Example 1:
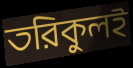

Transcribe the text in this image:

তরিকুলই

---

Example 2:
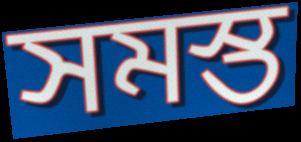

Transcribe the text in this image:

সমস্ত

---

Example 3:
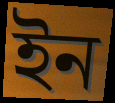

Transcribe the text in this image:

ইন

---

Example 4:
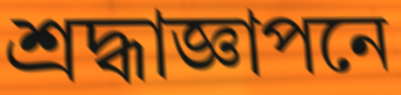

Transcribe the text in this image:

শ্রদ্ধাজ্ঞাপনে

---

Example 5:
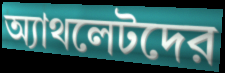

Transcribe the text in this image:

অ্যাথলেটদের